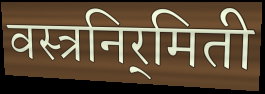
वस्त्रनिर्मिती